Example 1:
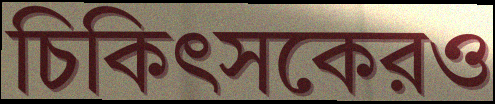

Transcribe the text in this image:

চিকিৎসকেরও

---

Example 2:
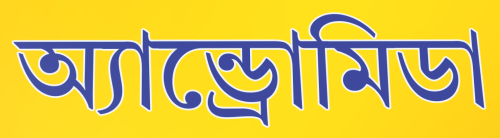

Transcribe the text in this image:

অ্যান্ড্রোমিডা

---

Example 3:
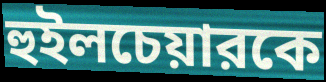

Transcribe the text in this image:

হুইলচেয়ারকে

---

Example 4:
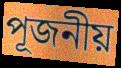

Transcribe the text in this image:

পূজনীয়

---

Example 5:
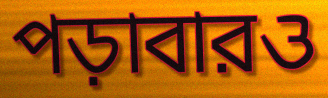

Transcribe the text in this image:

পড়াবারও